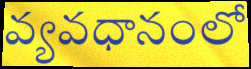
వ్యవధానంలో